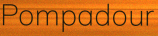
Pompadour